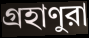
গ্রহাণুরা